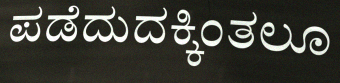
ಪಡೆದುದಕ್ಕಿಂತಲೂ